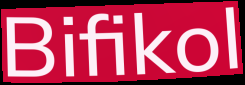
Bifikol